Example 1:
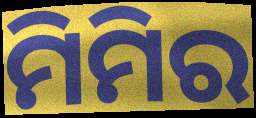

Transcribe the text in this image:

ମିମିର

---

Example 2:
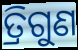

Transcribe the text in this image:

ତ୍ରିଗୁଣ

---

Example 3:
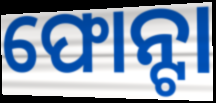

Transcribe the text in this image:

ଫୋନ୍ଟା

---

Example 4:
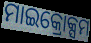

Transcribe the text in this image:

ମାଇକ୍ରୋକ୍ସମ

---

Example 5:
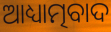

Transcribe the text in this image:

ଆଧ୍ୟାତ୍ମବାଦ